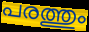
പരത്തും